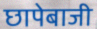
छापेबाजी